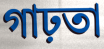
গাঢ়তা